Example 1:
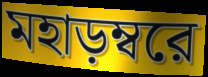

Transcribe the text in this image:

মহাড়ম্বরে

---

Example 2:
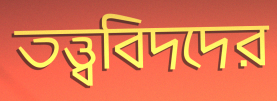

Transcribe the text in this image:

তত্ত্ববিদদের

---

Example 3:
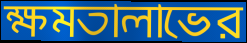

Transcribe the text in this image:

ক্ষমতালাভের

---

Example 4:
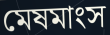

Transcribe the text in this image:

মেষমাংস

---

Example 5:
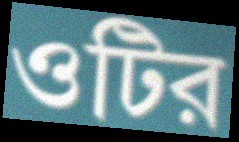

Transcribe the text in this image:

ওটির